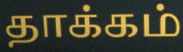
தாக்கம்